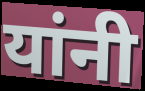
यांनी